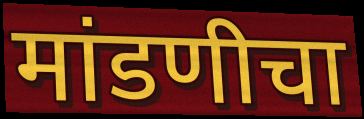
मांडणीचा